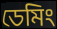
ডেমিং